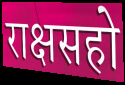
राक्षसहो